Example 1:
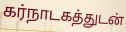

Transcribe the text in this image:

கர்நாடகத்துடன்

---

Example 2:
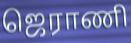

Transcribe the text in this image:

ஜெராணி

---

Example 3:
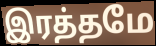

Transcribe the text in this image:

இரத்தமே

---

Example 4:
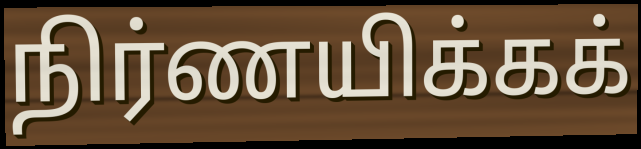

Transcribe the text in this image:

நிர்ணயிக்கக்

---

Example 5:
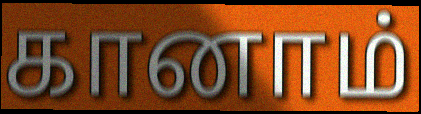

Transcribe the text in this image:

கானாம்